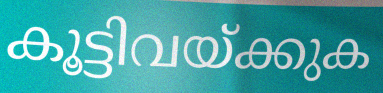
കൂട്ടിവയ്ക്കുക